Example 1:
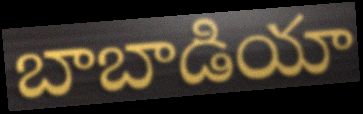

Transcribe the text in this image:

బాబాడియా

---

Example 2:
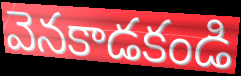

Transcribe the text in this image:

వెనకాడకండి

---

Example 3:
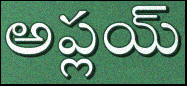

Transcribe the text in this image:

అప్లయ్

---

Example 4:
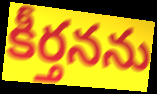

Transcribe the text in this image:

కీర్తనను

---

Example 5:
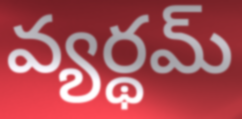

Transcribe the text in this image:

వ్యర్థమ్